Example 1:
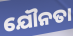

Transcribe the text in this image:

ଯୌନତା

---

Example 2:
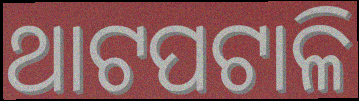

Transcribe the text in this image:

ଥାଟପଟାଳି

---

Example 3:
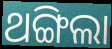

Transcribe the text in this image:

ଥଙ୍ଗିଲା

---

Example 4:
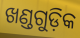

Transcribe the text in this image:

ଖଣ୍ଡଗୁଡ଼ିକ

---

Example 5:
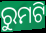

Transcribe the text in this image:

ରୁମଟି